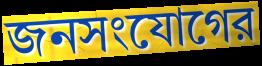
জনসংযোগের